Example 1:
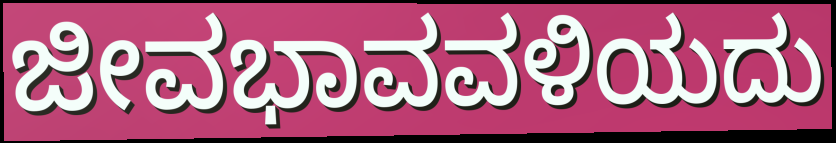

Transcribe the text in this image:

ಜೀವಭಾವವಳಿಯದು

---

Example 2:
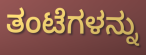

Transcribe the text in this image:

ತಂಟೆಗಳನ್ನು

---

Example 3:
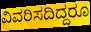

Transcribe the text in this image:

ವಿವರಿಸದಿದ್ದರೂ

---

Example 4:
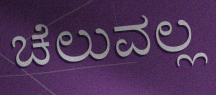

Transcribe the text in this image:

ಚೆಲುವಲ್ಲ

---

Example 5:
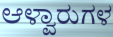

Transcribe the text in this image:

ಆಳ್ವಾರುಗಳ